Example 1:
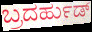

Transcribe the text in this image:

ಬ್ರದರ್ಹುಡ್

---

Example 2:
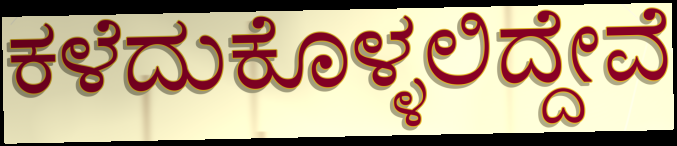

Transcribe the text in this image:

ಕಳೆದುಕೊಳ್ಳಲಿದ್ದೇವೆ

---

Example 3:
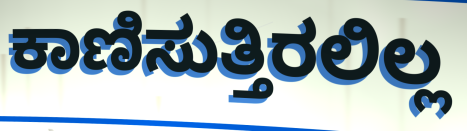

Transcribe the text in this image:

ಕಾಣಿಸುತ್ತಿರಲಿಲ್ಲ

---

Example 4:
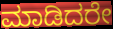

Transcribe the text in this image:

ಮಾಡಿದರೇ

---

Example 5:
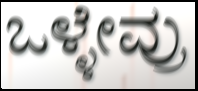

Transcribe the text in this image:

ಒಳ್ಳೇವ್ರು